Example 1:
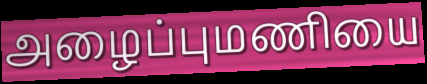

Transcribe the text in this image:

அழைப்புமணியை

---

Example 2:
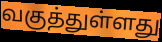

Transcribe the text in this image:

வகுத்துள்ளது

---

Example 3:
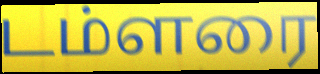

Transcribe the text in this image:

டம்ளரை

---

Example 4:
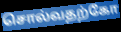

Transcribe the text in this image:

சொல்வதற்கோ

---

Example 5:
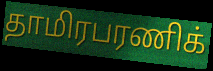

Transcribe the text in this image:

தாமிரபரணிக்